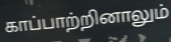
காப்பாற்றினாலும்